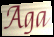
Aga